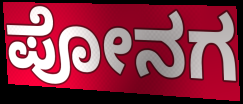
ಪೋನಗ